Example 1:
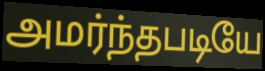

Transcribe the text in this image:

அமர்ந்தபடியே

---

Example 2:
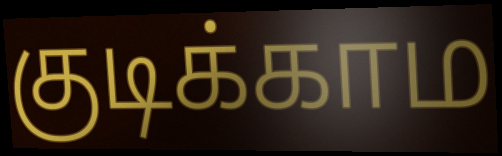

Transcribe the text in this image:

குடிக்காம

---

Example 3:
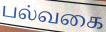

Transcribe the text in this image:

பல்வகை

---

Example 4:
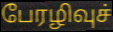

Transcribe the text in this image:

பேரழிவுச்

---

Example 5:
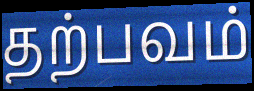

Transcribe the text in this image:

தற்பவம்